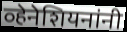
व्हेनेशियनांनी